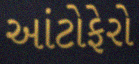
આંટોફેરો